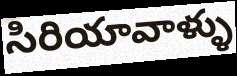
సిరియావాళ్ళు